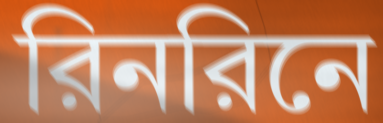
রিনরিনে